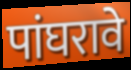
पांघरावे